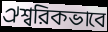
ঐশ্বরিকভাবে